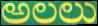
అలలు